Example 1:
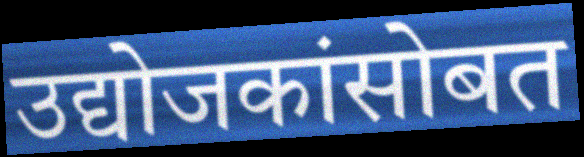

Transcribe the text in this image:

उद्योजकांसोबत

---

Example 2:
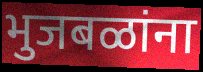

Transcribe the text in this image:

भुजबळांना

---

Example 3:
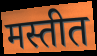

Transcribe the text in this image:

मस्तीत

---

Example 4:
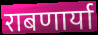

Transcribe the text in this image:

राबणार्या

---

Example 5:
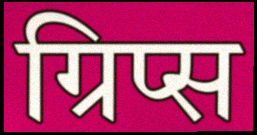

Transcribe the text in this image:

ग्रिप्स